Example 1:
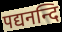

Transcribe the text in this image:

पद्यनन्दि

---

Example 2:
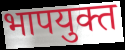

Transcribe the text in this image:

भापयुक्त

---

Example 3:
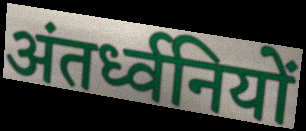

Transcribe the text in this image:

अंतर्ध्वनियों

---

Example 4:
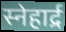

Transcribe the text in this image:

स्नेहार्द्र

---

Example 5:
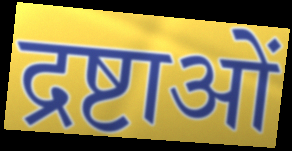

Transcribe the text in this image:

द्रष्टाओं